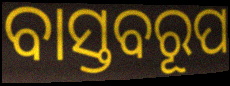
ବାସ୍ତବରୂପ